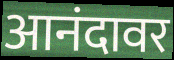
आनंदावर